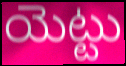
యెట్టు